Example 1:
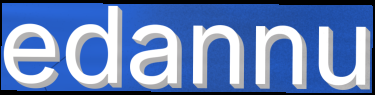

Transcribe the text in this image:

edannu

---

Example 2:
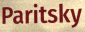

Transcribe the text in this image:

Paritsky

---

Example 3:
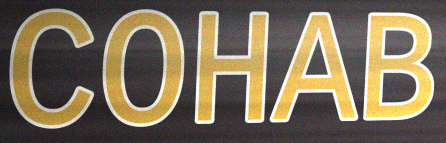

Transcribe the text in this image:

COHAB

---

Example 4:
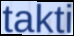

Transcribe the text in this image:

takti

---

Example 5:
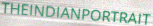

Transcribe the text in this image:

THEINDIANPORTRAIT